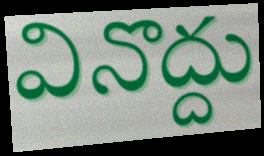
వినొద్దు